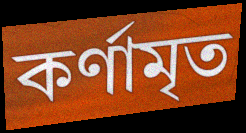
কর্ণামৃত